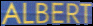
ALBERT